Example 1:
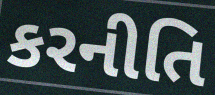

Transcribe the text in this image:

કરનીતિ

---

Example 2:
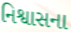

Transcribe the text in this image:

નિશ્વાસના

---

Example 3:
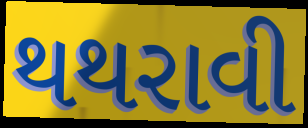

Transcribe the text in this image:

થથરાવી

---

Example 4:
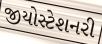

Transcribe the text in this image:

જીયોસ્ટેશનરી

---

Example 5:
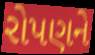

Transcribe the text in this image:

રોપણને